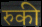
रुकी